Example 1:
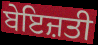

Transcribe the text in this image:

ਬੇਇਜ਼ਤੀ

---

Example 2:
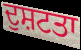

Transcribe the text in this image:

ਦੁਸ਼ਟਤਾ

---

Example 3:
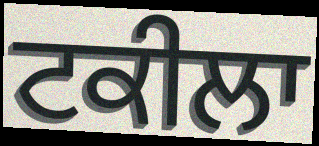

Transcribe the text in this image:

ਟਕੀਲਾ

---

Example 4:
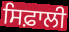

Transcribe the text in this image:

ਸਿਫ਼ਾਲੀ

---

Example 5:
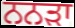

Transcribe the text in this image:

ਨਨੜਾ